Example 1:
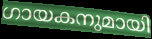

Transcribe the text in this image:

ഗായകനുമായി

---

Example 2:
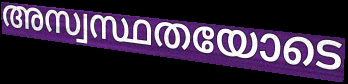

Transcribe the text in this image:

അസ്വസ്ഥതയോടെ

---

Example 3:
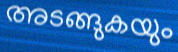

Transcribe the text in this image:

അടങ്ങുകയും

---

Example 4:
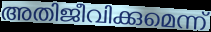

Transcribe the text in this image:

അതിജീവിക്കുമെന്ന്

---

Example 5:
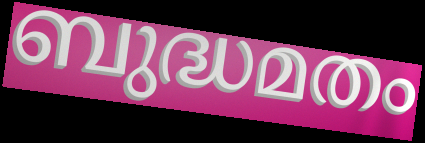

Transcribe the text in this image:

ബുദ്ധമതം